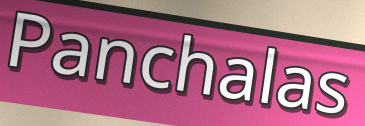
Panchalas